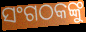
ସଂଗଠକଙ୍କୁ